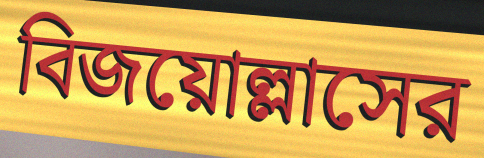
বিজয়োল্লাসের